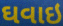
ઘવાઇ